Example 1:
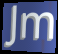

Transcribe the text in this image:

Jm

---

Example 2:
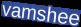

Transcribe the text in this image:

vamshee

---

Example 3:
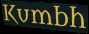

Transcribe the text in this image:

Kumbh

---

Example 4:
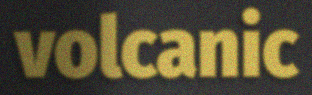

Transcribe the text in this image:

volcanic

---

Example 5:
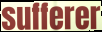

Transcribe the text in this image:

sufferer